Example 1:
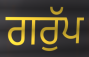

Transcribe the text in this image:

ਗਰੁੱਪ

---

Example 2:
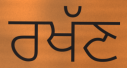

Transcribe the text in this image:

ਰਖੱਣ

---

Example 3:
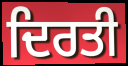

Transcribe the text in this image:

ਦਿਰਤੀ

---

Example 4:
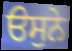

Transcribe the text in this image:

ੳਸੁਨੇ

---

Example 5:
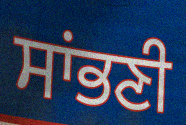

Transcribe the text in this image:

ਸਾਂਭਣੀ